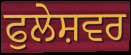
ਫੁਲੇਸ਼ਵਰ